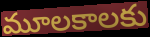
మూలకాలకు